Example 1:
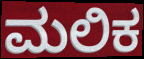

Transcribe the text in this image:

ಮಲಿಕ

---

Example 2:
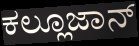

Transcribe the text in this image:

ಕಲ್ಲೂಜಾನ್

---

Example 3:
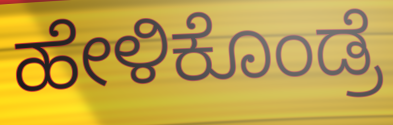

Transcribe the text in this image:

ಹೇಳಿಕೊಂಡ್ರೆ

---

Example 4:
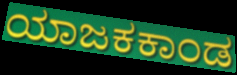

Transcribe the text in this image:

ಯಾಜಕಕಾಂಡ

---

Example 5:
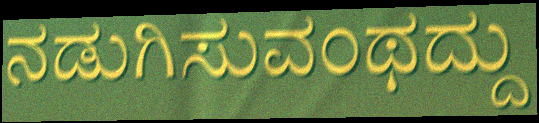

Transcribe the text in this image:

ನಡುಗಿಸುವಂಥದ್ದು